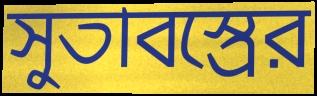
সুতাবস্ত্রের